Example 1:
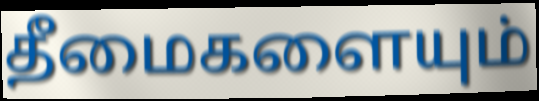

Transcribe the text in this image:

தீமைகளையும்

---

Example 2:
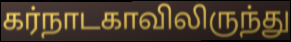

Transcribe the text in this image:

கர்நாடகாவிலிருந்து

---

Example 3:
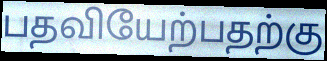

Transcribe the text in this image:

பதவியேற்பதற்கு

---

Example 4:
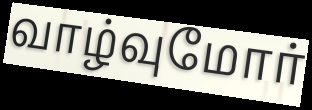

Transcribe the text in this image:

வாழ்வுமோர்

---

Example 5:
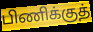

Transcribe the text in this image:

பிணிக்குத்